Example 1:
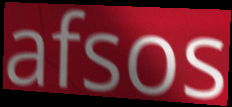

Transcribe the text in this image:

afsos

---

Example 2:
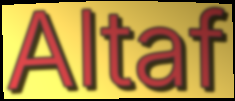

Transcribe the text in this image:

Altaf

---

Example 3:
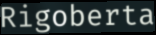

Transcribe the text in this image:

Rigoberta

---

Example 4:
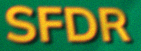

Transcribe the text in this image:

SFDR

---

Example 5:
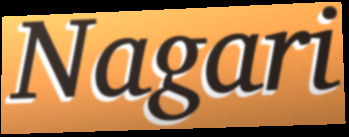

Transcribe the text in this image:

Nagari